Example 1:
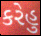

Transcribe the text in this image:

કરેહુ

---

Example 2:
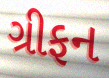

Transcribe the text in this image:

ગ્રીફન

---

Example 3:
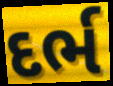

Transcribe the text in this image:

દર્ભ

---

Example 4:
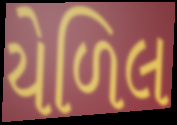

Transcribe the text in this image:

યેળિલ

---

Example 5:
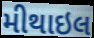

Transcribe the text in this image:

મીથાઇલ